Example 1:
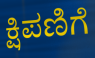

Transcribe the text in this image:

ಕ್ಷಿಪಣಿಗೆ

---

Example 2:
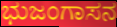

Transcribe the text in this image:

ಭುಜಂಗಾಸನ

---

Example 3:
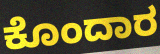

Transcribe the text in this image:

ಕೊಂದಾರ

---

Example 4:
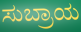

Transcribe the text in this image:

ಸುಬ್ರಾಯ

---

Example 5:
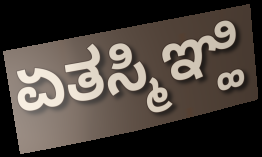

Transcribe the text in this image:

ಏತಸ್ಮಿಞ್ಹಿ